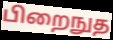
பிறைநுத